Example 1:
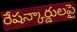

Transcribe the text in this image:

రేషన్కార్డులపై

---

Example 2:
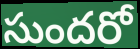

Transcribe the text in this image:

సుందరో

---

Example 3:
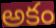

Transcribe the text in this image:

అకం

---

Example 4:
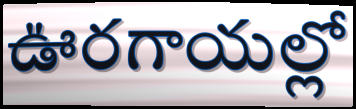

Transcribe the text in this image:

ఊరగాయల్లో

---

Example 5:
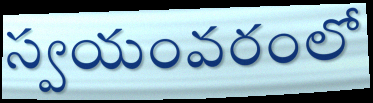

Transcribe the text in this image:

స్వయంవరంలో